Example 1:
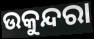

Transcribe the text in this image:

ଉକୁନ୍ଦରା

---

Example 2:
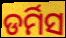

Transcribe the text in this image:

ଡର୍ମିସ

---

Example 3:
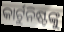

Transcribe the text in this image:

କାର୍ଟୁନିଷ୍ଟଙ୍କୁ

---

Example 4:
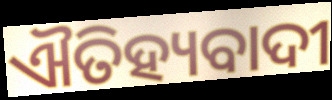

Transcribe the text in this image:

ଐତିହ୍ୟବାଦୀ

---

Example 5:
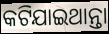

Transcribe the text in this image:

କଟିଯାଇଥାନ୍ତା